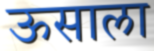
ऊसाला